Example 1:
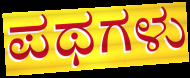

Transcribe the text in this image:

ಪಥಗಳು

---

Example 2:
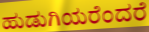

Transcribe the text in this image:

ಹುಡುಗಿಯರೆಂದರೆ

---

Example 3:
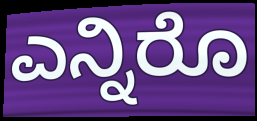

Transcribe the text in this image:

ಎನ್ನಿರೊ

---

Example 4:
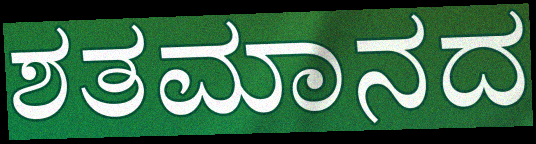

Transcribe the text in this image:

ಶತಮಾನದ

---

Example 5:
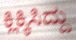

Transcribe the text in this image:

ಕ್ಲಿಕ್ಕಿಸಿದ್ದು